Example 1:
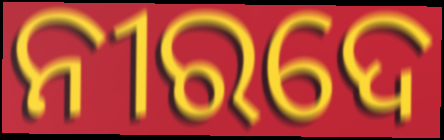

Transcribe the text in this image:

ନୀରଦେ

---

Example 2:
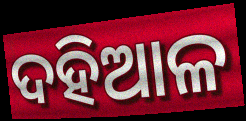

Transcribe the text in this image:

ଦହିଆଳ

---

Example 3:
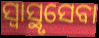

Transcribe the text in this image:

ସ୍ୱାସ୍ଥୃସେବା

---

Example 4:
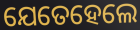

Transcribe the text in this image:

ଯେତେହେଲେ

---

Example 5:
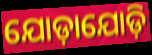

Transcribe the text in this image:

ଯୋଡ଼ାଯୋଡ଼ି